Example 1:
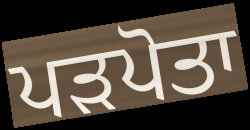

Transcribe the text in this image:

ਪੜਪੋਤਾ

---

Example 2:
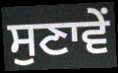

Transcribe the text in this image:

ਸੁਣਾਵੇਂ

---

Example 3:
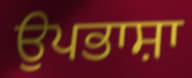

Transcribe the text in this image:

ਉਪਭਾਸ਼ਾ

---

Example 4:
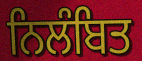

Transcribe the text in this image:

ਨਿਲੰਬਿਤ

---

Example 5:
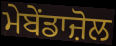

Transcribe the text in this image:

ਮੇਬੇਂਡਾਜ਼ੋਲ